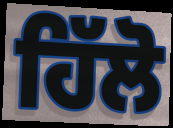
ਹਿੱਲੋ